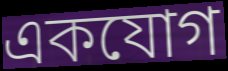
একযোগ